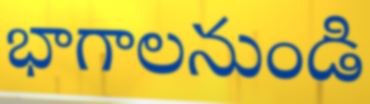
భాగాలనుండి